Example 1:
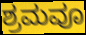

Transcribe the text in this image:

ಶ್ರಮವೂ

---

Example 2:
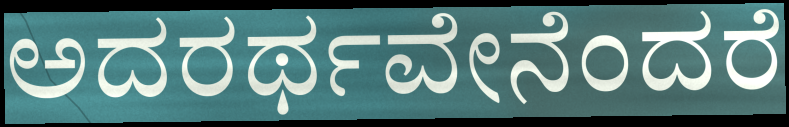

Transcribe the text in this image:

ಅದರರ್ಥವೇನೆಂದರೆ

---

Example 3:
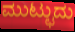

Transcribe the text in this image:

ಮುಟ್ಟುದು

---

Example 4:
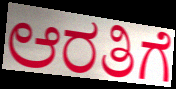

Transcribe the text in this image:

ಆರತಿಗೆ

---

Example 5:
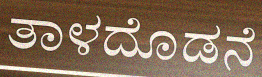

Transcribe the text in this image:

ತಾಳದೊಡನೆ